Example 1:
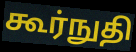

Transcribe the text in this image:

கூர்நுதி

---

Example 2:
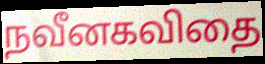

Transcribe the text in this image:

நவீனகவிதை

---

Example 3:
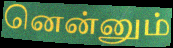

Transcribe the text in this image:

னென்னும்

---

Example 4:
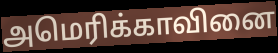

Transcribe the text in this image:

அமெரிக்காவினை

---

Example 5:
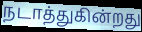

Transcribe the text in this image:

நடாத்துகின்றது